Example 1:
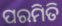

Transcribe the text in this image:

ପରମିତି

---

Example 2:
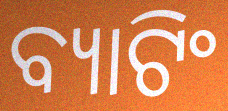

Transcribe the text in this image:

ବ୍ୟାଟିଂ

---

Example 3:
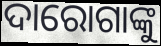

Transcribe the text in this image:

ଦାରୋଗାଙ୍କୁ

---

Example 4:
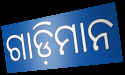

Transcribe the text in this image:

ଗାଡ଼ିମାନ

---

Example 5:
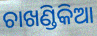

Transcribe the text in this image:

ଚାଖଣ୍ଡିକିଆ